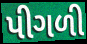
પીગળી